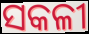
ସକଳୀ